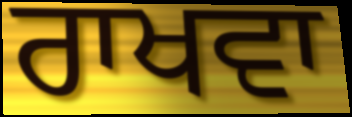
ਰਾਖਵਾ